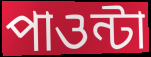
পাওন্টা